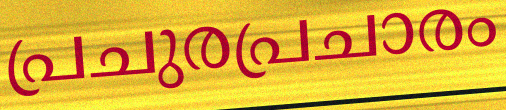
പ്രചുരപ്രചാരം